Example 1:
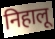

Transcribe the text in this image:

निहालू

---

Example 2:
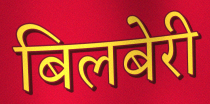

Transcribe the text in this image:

बिलबेरी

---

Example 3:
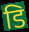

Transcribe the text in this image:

डि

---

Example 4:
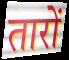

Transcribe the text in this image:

तारों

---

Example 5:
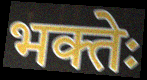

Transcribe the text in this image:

भक्तेः